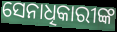
ସେନାଧିକାରୀଙ୍କ